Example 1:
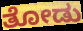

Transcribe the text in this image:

ತೋಡು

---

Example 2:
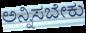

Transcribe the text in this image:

ಅನ್ನಿಸಬೇಕು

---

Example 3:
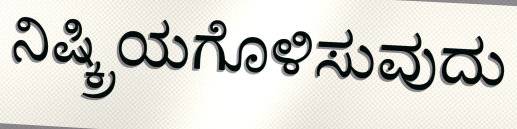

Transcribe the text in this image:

ನಿಷ್ಕ್ರಿಯಗೊಳಿಸುವುದು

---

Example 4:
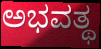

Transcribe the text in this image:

ಅಭವತ್ಥ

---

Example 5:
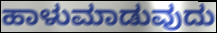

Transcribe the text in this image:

ಹಾಳುಮಾಡುವುದು